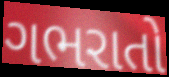
ગભરાતો